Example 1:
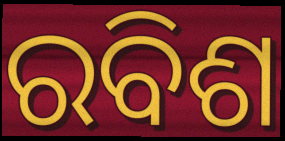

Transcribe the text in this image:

ରବିଶ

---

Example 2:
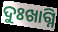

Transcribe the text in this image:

ଦୁଃଖାଗ୍ନି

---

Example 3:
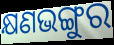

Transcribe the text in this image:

କ୍ଷଣଭଙ୍ଗୁର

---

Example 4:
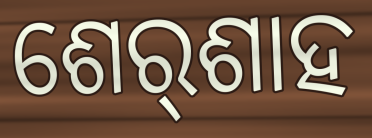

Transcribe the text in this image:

ଶେର୍‌ଶାହ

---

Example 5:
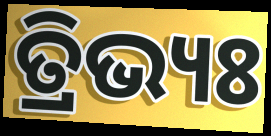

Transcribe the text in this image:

ତ୍ରିଭ୍ୟଃ